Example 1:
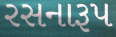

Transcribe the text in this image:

રસનારૂપ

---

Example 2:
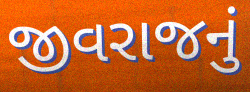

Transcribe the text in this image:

જીવરાજનું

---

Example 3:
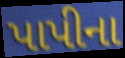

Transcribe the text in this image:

પાપીના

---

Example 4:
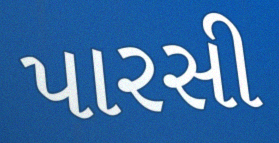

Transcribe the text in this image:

પારસી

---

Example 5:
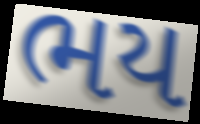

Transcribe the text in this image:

ભય